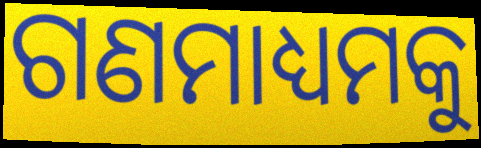
ଗଣମାଧ୍ୟମକୁ